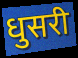
धुसरी